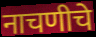
नाचणीचे